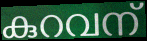
കുറവന്